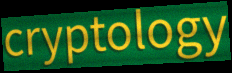
cryptology